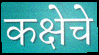
कक्षेचे